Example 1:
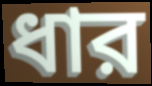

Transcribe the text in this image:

ধার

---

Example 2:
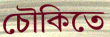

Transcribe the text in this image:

চৌকিতে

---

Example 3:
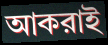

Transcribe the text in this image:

আকরাই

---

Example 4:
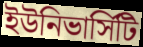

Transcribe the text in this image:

ইউনিভার্সিটি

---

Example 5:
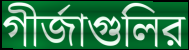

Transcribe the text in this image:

গীর্জাগুলির